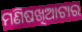
ମଣିଷଖିଆଟାର